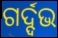
ଗର୍ଦ୍ଦଭ